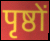
पृष्ठों